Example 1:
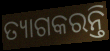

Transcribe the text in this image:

ତ୍ୟାଗକରନ୍ତି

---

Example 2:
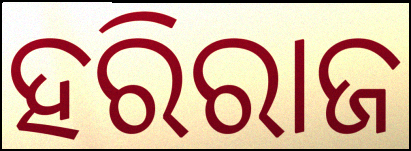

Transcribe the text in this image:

ହରିରାଜ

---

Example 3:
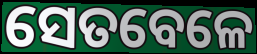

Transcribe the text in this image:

ସେତବେଳେ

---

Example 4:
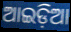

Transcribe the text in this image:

ଆଇଡ଼ିଆ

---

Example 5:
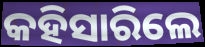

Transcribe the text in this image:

କହିସାରିଲେ